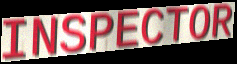
INSPECTOR